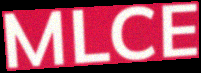
MLCE